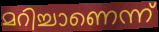
മറിച്ചാണെന്ന്